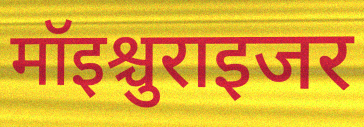
मॉइश्चुराइजर